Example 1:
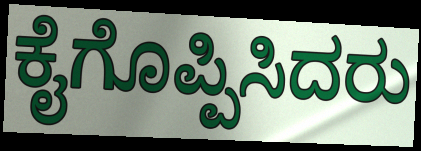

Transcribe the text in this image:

ಕೈಗೊಪ್ಪಿಸಿದರು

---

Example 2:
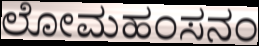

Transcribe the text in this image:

ಲೋಮಹಂಸನಂ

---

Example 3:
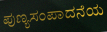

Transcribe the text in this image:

ಪುಣ್ಯಸಂಪಾದನೆಯ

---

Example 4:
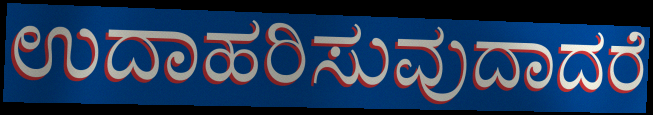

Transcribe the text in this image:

ಉದಾಹರಿಸುವುದಾದರೆ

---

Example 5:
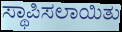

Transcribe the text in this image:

ಸ್ಥಾಪಿಸಲಾಯಿತು